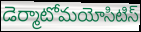
డెర్మాటోమయోసిటిస్